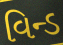
વિન્ડ